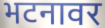
भटनावर